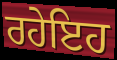
ਰਹੇਇਹ